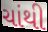
ચાંથી